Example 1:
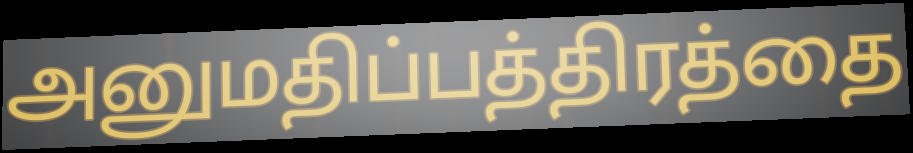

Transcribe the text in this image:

அனுமதிப்பத்திரத்தை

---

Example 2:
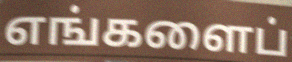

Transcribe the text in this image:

எங்களைப்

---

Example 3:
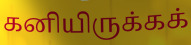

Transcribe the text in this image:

கனியிருக்கக்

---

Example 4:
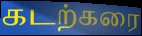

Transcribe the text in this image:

கடற்கரை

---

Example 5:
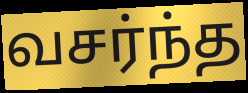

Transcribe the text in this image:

வசர்ந்த